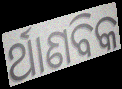
ର୍ଥାଣବିକ